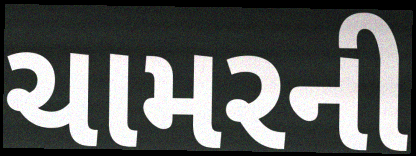
ચામરની